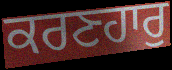
ਕਰਣਹਾਰੁ